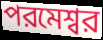
পরমেশ্বর